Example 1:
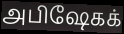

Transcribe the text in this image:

அபிஷேகக்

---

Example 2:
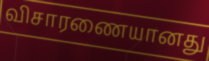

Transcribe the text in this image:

விசாரணையானது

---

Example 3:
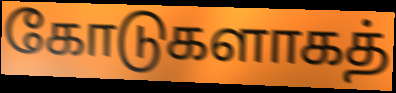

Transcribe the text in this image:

கோடுகளாகத்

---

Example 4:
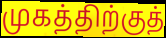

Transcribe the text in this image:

முகத்திற்குத்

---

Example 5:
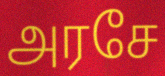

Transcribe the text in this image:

அரசே